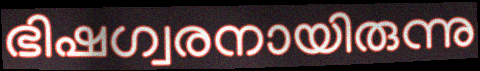
ഭിഷഗ്വരനായിരുന്നു